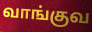
வாங்குவ